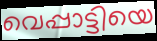
വെപ്പാട്ടിയെ